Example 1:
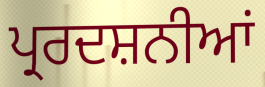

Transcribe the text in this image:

ਪ੍ਰਰਦਸ਼ਨੀਆਂ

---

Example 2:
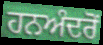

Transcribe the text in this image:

ਹਨਅੰਦਰੋਂ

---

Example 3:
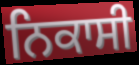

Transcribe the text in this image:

ਨਿਕਾਸੀ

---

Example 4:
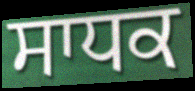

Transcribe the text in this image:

ਸਾਧਕ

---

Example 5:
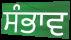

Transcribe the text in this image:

ਸੰਭਾਵ